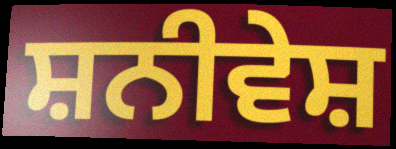
ਸ਼ਨੀਵੇਸ਼